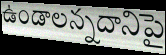
ఉండాలన్నదానిపై